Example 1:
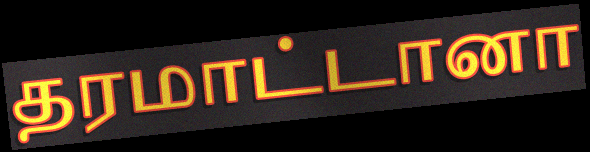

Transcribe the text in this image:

தரமாட்டானா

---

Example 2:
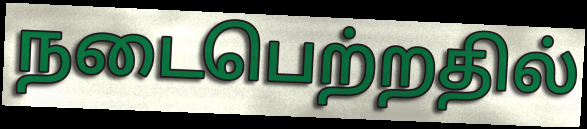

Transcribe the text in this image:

நடைபெற்றதில்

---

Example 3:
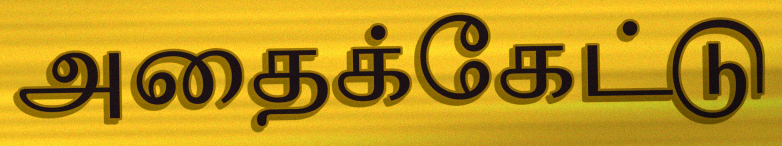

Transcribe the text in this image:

அதைக்கேட்டு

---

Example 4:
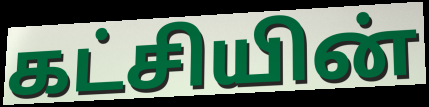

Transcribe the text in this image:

கட்சியின்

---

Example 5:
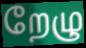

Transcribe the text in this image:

றேழு